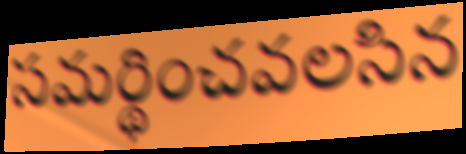
సమర్థించవలసిన